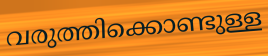
വരുത്തിക്കൊണ്ടുള്ള